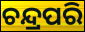
ଚନ୍ଦ୍ରପରି